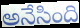
అనేసింది